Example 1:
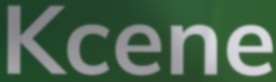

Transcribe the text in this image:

Kcene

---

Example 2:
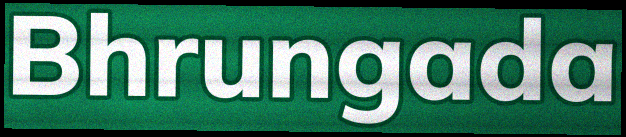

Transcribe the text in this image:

Bhrungada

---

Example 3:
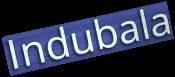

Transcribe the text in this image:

Indubala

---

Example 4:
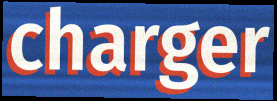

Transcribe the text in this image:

charger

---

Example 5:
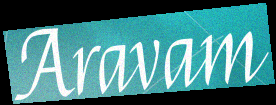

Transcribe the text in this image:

Aravam